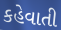
કહેવાતી